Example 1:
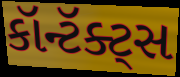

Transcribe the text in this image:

કૉન્ટૅક્ટ્સ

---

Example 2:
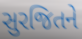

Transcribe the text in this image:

સુરજિતને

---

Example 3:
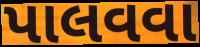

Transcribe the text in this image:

પાલવવા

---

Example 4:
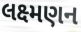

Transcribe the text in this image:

લક્ષ્મણન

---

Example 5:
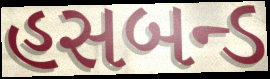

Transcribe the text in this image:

હસબન્ડ